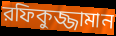
রফিকুজ্জামান